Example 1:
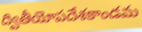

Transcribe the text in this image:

ద్వితీయోపదేశకాండమ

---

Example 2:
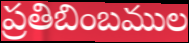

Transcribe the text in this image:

ప్రతిబింబముల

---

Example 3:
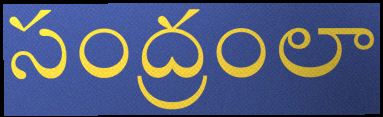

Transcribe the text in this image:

సంద్రంలా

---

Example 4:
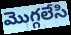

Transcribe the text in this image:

మొగ్గలేసి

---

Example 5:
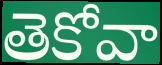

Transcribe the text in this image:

తెకోవా